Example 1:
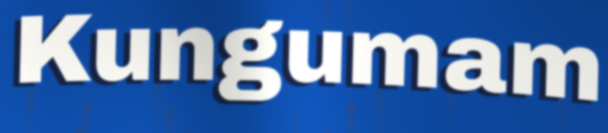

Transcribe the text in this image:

Kungumam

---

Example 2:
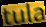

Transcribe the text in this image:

tula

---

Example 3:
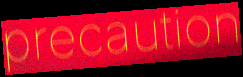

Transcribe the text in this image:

precaution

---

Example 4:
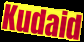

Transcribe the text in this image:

Kudaid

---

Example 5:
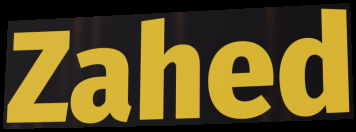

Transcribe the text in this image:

Zahed